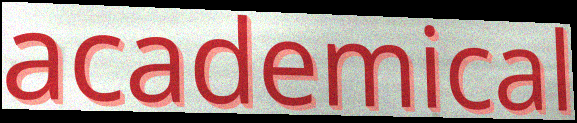
academical